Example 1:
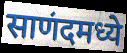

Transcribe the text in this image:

साणंदमध्ये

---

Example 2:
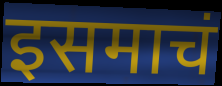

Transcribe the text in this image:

इसमाचं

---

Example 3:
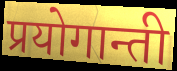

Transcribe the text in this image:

प्रयोगान्ती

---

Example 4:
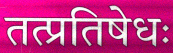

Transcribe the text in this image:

तत्प्रतिषेधः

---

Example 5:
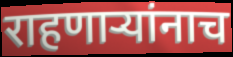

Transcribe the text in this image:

राहणाऱ्यांनाच